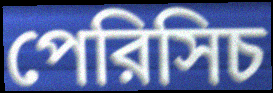
পেরিসিচ